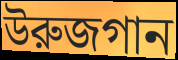
উরুজগান